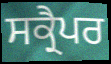
ਸਕ੍ਰੈਪਰ